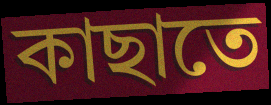
কাছাতে